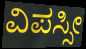
ವಿಪಸ್ಸೀ